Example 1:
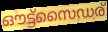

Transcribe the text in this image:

ഔട്ട്സൈഡര്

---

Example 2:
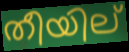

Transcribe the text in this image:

തീയില്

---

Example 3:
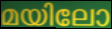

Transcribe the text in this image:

മയിലോ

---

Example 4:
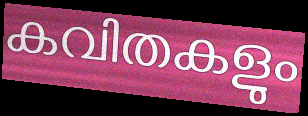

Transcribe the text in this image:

കവിതകളും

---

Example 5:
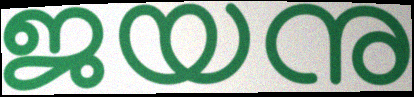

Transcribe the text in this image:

ജയനു